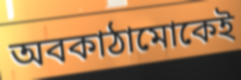
অবকাঠামোকেই